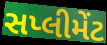
સપ્લીમેંટ